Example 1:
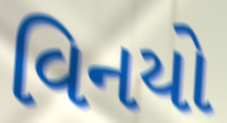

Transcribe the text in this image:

વિનયો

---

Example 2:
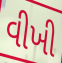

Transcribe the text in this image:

વીખી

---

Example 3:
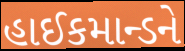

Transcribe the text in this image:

હાઈકમાન્ડને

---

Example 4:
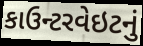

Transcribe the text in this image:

કાઉન્ટરવેઇટનું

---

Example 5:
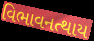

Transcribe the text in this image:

વિભાવનત્થાય